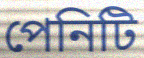
পেনিটি